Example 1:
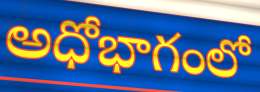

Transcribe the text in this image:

అధోభాగంలో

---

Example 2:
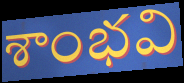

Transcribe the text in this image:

శాంభవి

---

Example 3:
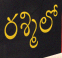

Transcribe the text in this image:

రశ్మిలో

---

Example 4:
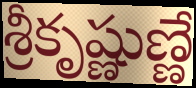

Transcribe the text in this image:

శ్రీకృష్ణుణ్ణే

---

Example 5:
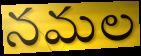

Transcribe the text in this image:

నమల